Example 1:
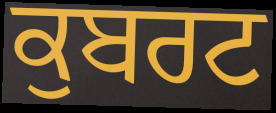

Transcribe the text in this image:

ਕੁਬਰਟ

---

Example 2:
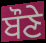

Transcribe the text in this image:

ਬੌਣੇ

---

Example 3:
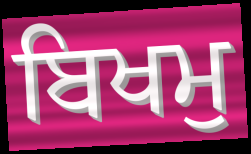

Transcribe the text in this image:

ਬਿਖਮੁ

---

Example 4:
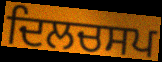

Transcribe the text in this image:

ਦਿਲਚਸਪ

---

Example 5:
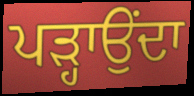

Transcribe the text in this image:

ਪੜ੍ਹਾਉਂਦਾ